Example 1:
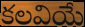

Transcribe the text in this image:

కలవియే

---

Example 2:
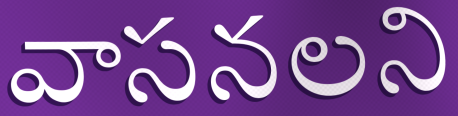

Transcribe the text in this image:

వాసనలని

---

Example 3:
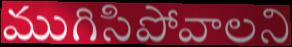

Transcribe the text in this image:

ముగిసిపోవాలని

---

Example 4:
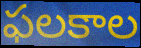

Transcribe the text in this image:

ఫలకాల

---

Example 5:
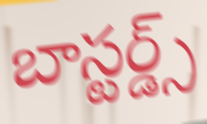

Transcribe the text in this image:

బాస్టర్డ్స్